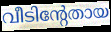
വീടിന്റേതായ